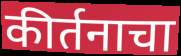
कीर्तनाचा